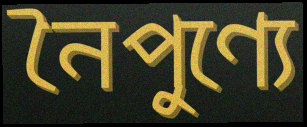
নৈপুণ্যে